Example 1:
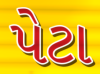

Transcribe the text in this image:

પેટા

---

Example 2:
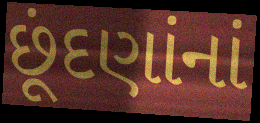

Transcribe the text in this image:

છૂંદણાંનાં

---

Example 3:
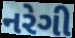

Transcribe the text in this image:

નરેગી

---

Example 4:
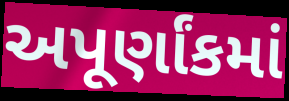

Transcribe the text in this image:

અપૂર્ણાંકમાં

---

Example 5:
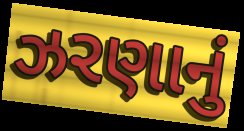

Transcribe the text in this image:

ઝરણાનું